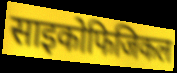
साइकोफिजिकल